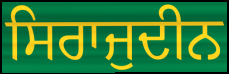
ਸਿਰਾਜੁਦੀਨ